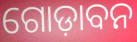
ଗୋଡ଼ାବନ